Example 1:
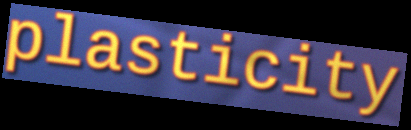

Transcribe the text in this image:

plasticity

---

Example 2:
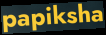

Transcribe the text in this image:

papiksha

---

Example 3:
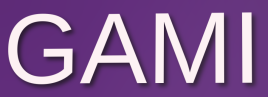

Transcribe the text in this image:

GAMI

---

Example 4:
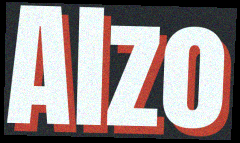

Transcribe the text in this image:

Alzo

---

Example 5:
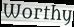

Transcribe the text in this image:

Worthy